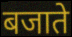
बजाते